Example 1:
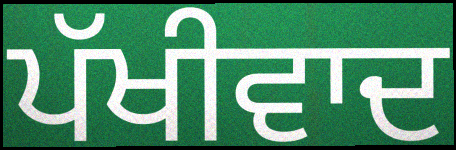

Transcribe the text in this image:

ਪੱਖੀਵਾਦ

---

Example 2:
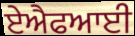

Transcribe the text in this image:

ਏਐਫਆਈ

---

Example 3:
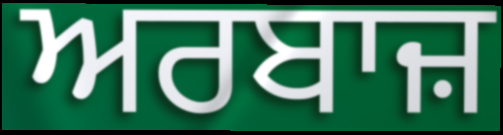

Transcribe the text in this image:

ਅਰਬਾਜ਼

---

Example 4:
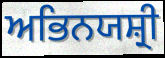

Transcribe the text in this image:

ਅਭਿਨਯਸ਼੍ਰੀ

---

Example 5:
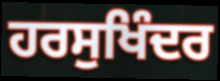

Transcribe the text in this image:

ਹਰਸੁਖਿੰਦਰ